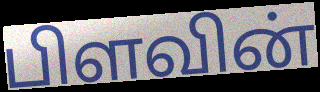
பிளவின்